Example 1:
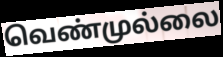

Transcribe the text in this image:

வெண்முல்லை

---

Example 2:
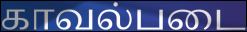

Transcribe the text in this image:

காவல்படை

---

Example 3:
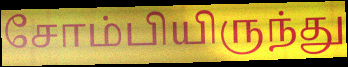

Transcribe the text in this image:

சோம்பியிருந்து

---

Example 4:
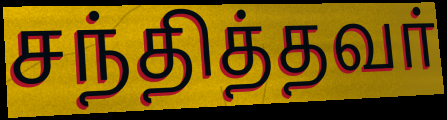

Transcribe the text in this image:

சந்தித்தவர்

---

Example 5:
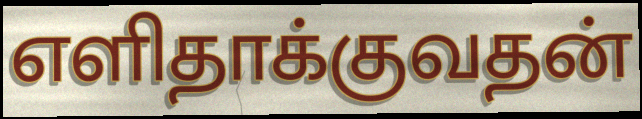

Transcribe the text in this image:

எளிதாக்குவதன்